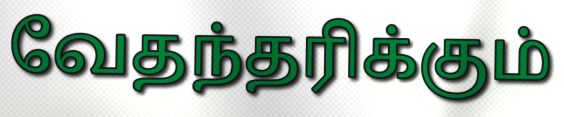
வேதந்தரிக்கும்